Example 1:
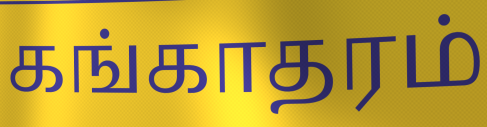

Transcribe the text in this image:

கங்காதரம்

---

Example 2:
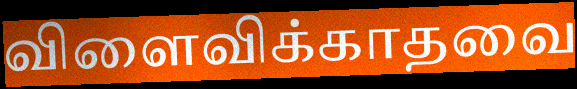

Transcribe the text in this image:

விளைவிக்காதவை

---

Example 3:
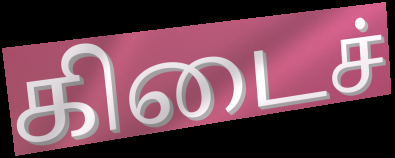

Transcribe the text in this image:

கிடைச்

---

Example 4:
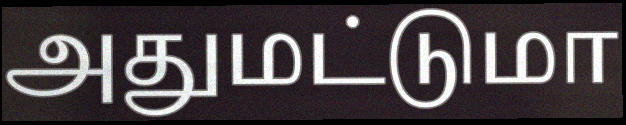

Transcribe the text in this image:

அதுமட்டுமா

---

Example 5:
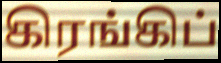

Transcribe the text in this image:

கிரங்கிப்